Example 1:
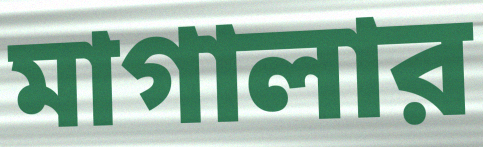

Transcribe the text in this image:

মাগালার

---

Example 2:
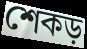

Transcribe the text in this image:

শেকড়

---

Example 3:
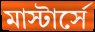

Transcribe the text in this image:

মাস্টার্সে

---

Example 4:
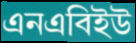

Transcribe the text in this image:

এনএবিইউ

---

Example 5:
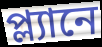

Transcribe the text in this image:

প্ল্যানে